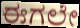
ಈಗಲೇ